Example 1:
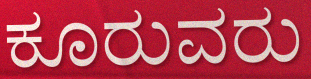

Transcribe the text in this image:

ಕೂರುವರು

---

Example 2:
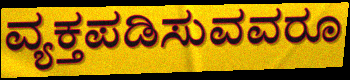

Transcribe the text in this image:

ವ್ಯಕ್ತಪಡಿಸುವವರೂ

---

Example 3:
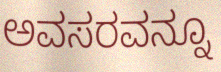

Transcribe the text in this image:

ಅವಸರವನ್ನೂ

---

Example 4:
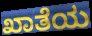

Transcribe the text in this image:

ಖಾತೆಯ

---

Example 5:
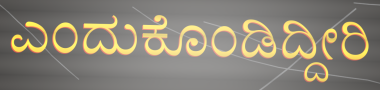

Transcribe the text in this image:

ಎಂದುಕೊಂಡಿದ್ದೀರಿ